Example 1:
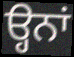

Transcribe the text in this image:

ੳ੍ਹਨਾਂ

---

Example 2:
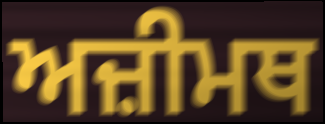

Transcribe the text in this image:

ਅਜ਼ੀਮਥ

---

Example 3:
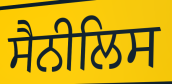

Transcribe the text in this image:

ਸੈਨੀਲਿਸ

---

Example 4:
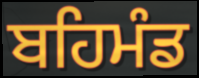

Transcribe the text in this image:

ਬਹਿਮੰਡ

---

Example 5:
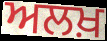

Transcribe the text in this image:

ਅਲਖ਼